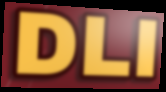
DLI